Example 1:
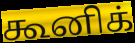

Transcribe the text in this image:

கூனிக்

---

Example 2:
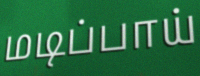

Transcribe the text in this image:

மடிப்பாய்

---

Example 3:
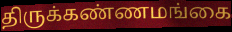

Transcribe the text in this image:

திருக்கண்ணமங்கை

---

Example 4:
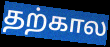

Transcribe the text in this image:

தற்கால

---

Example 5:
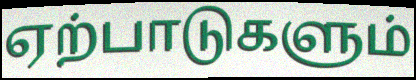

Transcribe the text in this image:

ஏற்பாடுகளும்